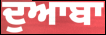
ਦੁਆਬਾ